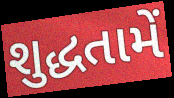
શુદ્ધતામેં